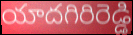
యాదగిరిరెడ్డి